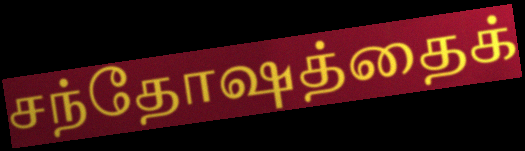
சந்தோஷத்தைக்